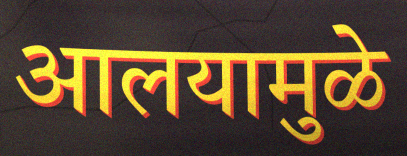
आलयामुळे